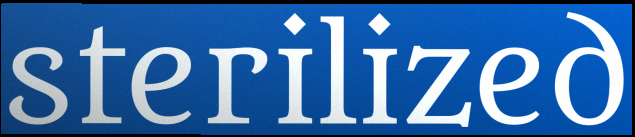
sterilized